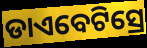
ଡାଏବେଟିସ୍ରେ